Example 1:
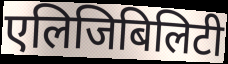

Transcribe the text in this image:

एलिजिबिलिटी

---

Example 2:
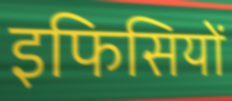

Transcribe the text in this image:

इफिसियों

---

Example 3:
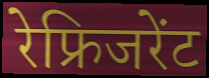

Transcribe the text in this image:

रेफ्रिजरेंट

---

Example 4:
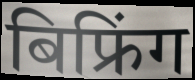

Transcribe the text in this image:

बिफ्रिंग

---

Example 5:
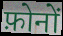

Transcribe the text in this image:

फ़ोनों